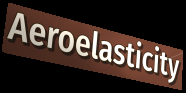
Aeroelasticity